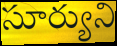
సూర్యుని